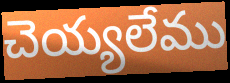
చెయ్యలేము